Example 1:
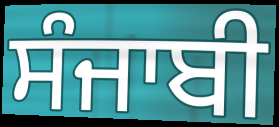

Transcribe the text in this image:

ਸੰਜਾਬੀ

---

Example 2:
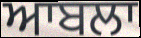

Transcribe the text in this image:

ਆਬਲਾ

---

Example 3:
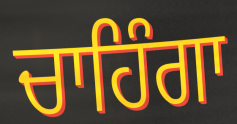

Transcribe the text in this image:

ਚਾਹਿੰਗਾ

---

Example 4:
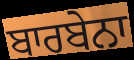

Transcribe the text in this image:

ਬਾਰਬੇਨਾ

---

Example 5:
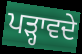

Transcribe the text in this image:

ਪੜ੍ਹਾਵਦੇ